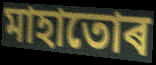
মাহাতোৰ